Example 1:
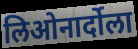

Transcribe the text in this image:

लिओनार्दोला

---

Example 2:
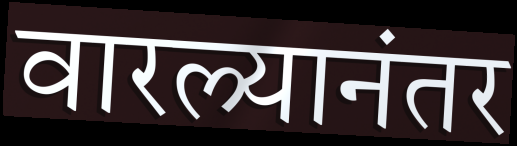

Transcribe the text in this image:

वारल्यानंतर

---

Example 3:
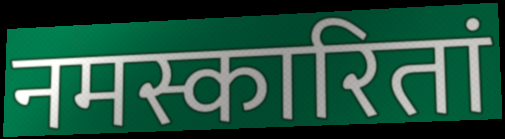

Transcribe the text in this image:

नमस्कारितां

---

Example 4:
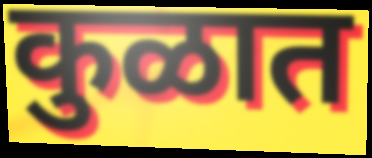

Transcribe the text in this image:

कुळात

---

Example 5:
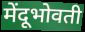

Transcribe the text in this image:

मेंदूभोवती